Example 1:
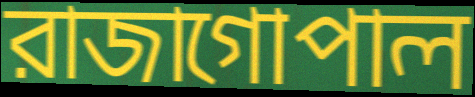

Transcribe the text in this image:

রাজাগোপাল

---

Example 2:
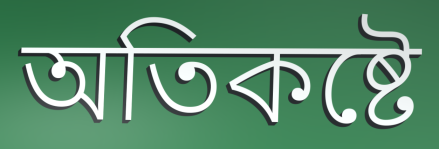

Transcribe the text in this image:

অতিকষ্টে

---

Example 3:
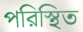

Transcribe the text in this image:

পরিস্থিত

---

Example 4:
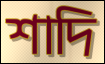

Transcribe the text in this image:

শাদি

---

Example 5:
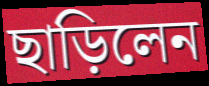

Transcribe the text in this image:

ছাড়িলেন